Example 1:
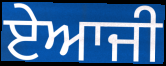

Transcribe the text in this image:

ਏਆਜੀ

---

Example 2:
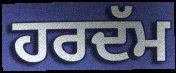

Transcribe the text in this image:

ਹਰਦੱਮ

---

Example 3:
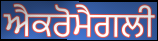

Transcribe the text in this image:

ਐਕਰੋਮੈਗਲੀ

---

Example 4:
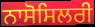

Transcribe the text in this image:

ਨਾਸੋਸਿਲਰੀ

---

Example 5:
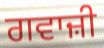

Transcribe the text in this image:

ਗਵਾਜ਼ੀ